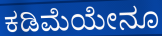
ಕಡಿಮೆಯೇನೂ